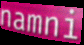
namni